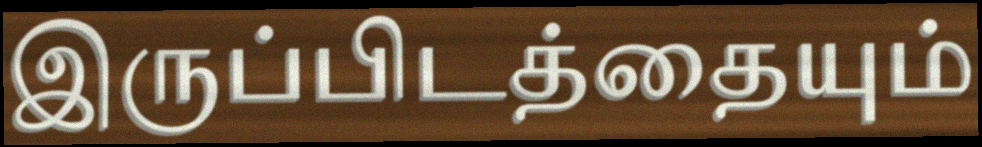
இருப்பிடத்தையும்